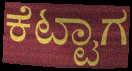
ಕೆಟ್ಟಾಗ